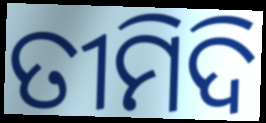
ତୀମିଦି